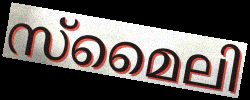
സ്മൈലി